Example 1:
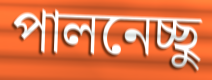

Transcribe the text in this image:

পালনেচ্ছু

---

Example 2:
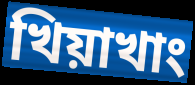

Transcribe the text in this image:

খিয়াখাং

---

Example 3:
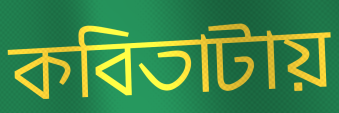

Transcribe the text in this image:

কবিতাটায়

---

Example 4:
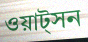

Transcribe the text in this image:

ওয়াট্সন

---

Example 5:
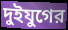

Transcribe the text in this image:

দুইযুগের